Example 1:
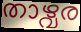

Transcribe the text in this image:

താഴ്വര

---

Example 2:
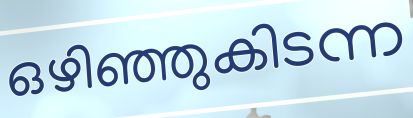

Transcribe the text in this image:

ഒഴിഞ്ഞുകിടന്ന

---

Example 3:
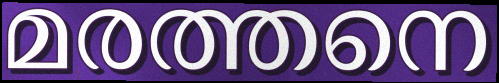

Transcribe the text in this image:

മരത്തനെ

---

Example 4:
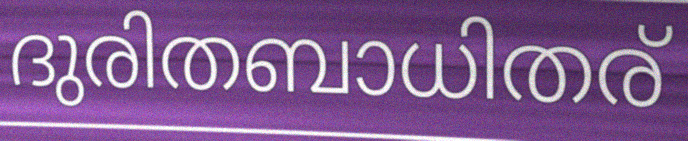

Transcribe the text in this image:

ദുരിതബാധിതര്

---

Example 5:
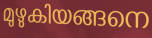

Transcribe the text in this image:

മുഴുകിയങ്ങനെ